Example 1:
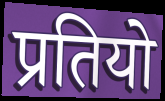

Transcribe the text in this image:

प्रतियो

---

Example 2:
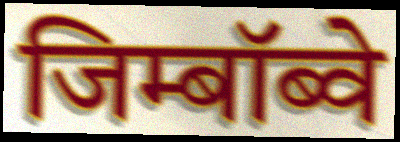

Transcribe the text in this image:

जिम्बॉब्वे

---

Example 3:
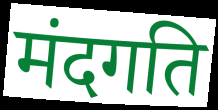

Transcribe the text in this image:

मंदगति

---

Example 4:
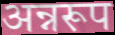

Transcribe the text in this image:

अन्नरूप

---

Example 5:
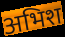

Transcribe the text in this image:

अभिश